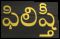
ఫిలిష్తీ